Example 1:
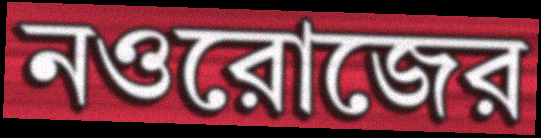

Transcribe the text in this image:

নওরোজের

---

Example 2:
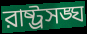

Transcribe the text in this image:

রাষ্ট্রসঙ্ঘ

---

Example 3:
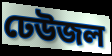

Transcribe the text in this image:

ঢেউজল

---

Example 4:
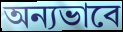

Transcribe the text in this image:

অন্যভাবে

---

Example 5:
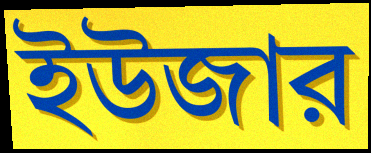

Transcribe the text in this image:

ইউজার